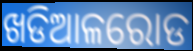
ଖଡିଆଳରୋଡ